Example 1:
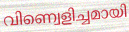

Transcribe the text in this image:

വിണ്വെളിച്ചമായി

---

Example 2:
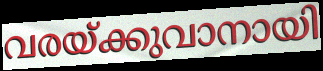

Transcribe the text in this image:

വരയ്ക്കുവാനായി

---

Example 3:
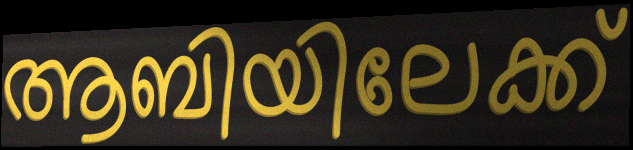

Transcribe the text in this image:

ആബിയിലേക്ക്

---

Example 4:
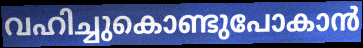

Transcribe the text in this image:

വഹിച്ചുകൊണ്ടുപോകാൻ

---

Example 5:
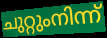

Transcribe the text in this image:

ചുറ്റുംനിന്ന്